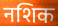
नशिक